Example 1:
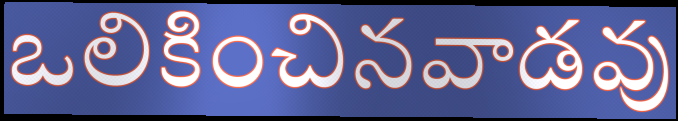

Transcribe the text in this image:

ఒలికించినవాడవు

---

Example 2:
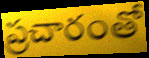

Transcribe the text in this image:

ప్రచారంతో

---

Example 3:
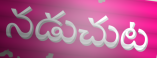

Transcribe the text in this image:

నడుచుట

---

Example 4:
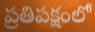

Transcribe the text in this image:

ప్రతిపక్షంలో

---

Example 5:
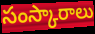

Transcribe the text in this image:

సంస్కారాలు